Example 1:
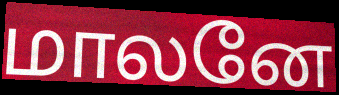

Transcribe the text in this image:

மாலனே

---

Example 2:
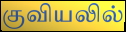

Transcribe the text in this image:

குவியலில்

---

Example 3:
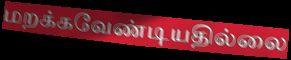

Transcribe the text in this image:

மறக்கவேண்டியதில்லை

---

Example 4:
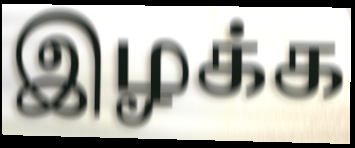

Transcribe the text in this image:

இழக்க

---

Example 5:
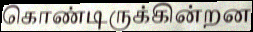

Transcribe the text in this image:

கொண்டிருக்கின்றன